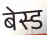
बेस्ड